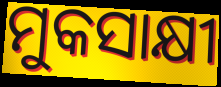
ମୁକସାକ୍ଷୀ